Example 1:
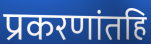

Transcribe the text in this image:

प्रकरणांतहि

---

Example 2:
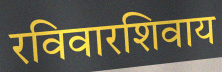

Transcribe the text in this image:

रविवारशिवाय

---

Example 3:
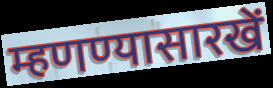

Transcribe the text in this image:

म्हणण्यासारखें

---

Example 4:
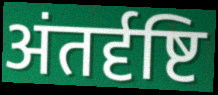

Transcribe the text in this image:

अंतर्दृष्टि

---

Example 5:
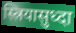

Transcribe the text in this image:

स्त्रियासुध्दा